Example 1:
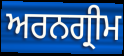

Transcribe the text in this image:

ਅਰਨਗ੍ਰੀਮ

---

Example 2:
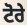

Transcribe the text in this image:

ਟੋਰੇ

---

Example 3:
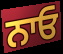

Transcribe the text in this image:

ਨਾਓ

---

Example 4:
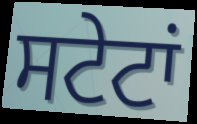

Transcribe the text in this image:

ਸਟੇਟਾਂ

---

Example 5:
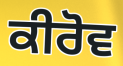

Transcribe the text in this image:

ਕੀਰੋਵ